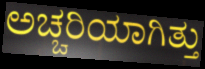
ಅಚ್ಚರಿಯಾಗಿತ್ತು